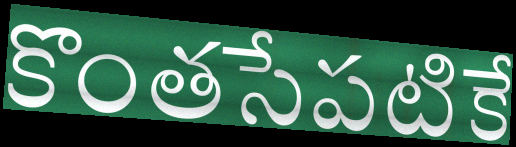
కొంతసేపటికే